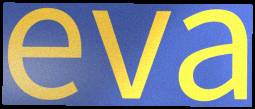
eva